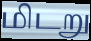
மிடறு